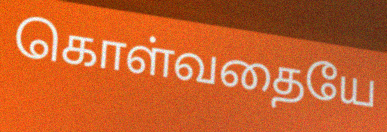
கொள்வதையே